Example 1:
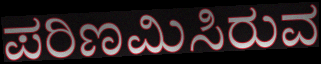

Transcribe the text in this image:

ಪರಿಣಮಿಸಿರುವ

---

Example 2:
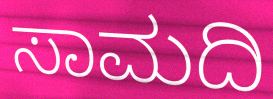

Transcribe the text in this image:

ಸಾಮದಿ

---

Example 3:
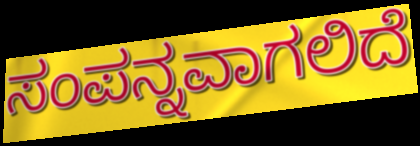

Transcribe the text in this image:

ಸಂಪನ್ನವಾಗಲಿದೆ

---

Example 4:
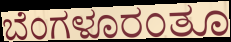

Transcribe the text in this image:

ಬೆಂಗಳೂರಂತೂ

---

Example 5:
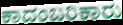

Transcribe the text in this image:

ಕಾದಂಬರಿಕಾರು